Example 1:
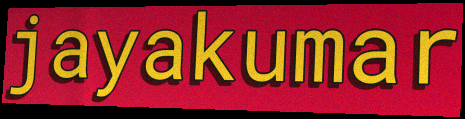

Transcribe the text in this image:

jayakumar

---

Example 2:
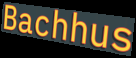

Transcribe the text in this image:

Bachhus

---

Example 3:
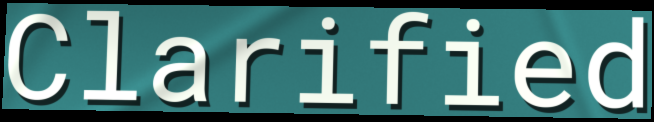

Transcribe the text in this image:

Clarified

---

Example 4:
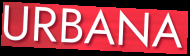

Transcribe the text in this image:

URBANA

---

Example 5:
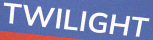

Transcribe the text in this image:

TWILIGHT